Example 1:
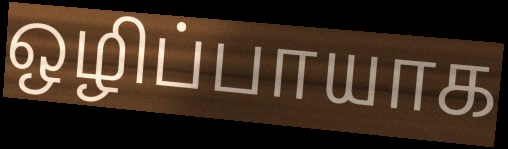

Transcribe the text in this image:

ஒழிப்பாயாக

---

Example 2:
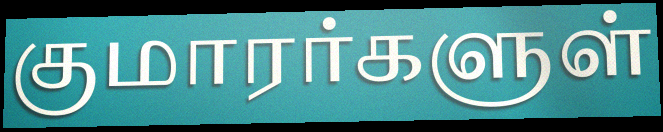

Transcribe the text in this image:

குமாரர்களுள்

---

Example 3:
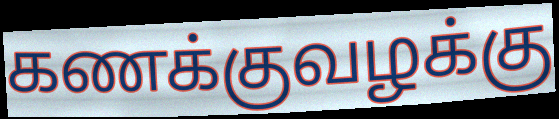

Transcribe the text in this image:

கணக்குவழக்கு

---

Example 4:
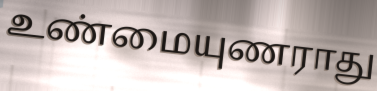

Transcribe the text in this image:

உண்மையுணராது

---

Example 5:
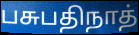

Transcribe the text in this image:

பசுபதிநாத்